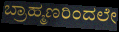
ಬ್ರಾಹ್ಮಣರಿಂದಲೇ